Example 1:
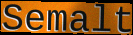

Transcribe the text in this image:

Semalt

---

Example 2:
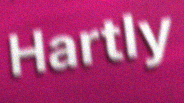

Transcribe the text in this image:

Hartly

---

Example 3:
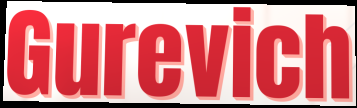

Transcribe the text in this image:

Gurevich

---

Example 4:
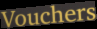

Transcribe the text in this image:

Vouchers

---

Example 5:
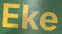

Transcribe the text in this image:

Eke